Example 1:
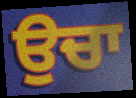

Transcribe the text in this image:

ਉਚਾ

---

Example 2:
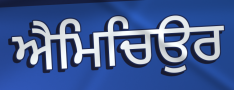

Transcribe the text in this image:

ਐਮਿਚਿਉਰ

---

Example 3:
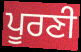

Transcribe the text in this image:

ਪੂਰਣੀ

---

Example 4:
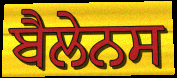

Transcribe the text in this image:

ਬੈਲੇਨਸ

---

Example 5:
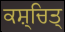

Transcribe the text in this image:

ਕਸ਼੍ਚਿਤ੍